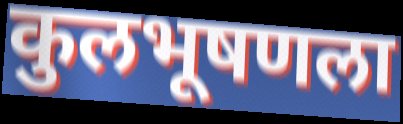
कुलभूषणला